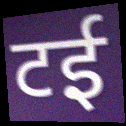
टई